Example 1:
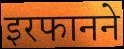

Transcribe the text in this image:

इरफानने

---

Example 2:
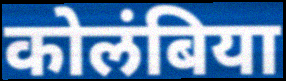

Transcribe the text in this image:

कोलंबिया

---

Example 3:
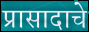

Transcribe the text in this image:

प्रासादाचे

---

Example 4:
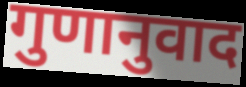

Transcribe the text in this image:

गुणानुवाद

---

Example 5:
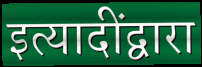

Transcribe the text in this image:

इत्यादींद्वारा